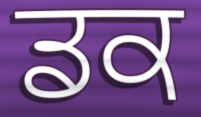
ਡਕ